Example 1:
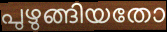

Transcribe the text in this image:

പുഴുങ്ങിയതോ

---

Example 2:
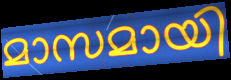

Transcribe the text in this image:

മാസമായി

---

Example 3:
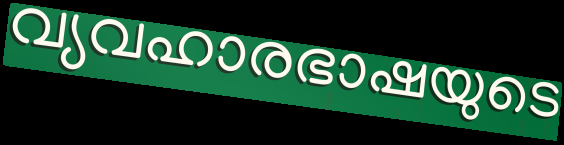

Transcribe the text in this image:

വ്യവഹാരഭാഷയുടെ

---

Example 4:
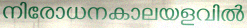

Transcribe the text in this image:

നിരോധനകാലയളവിൽ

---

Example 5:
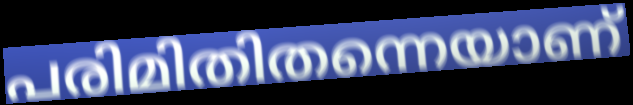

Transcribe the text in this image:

പരിമിതിതന്നെയാണ്